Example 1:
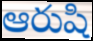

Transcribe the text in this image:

ఆరుషి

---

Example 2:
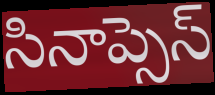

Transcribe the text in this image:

సినాప్సెస్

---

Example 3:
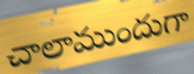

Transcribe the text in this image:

చాలాముందుగా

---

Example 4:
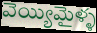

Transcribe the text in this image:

వెయ్యిమైళ్ళ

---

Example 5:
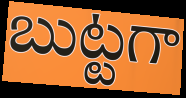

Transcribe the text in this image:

బుట్టగా